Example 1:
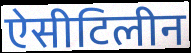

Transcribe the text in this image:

ऐसीटिलीन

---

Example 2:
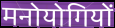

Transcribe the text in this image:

मनोयोगियों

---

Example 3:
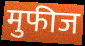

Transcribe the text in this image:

मुफीज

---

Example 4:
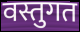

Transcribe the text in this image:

वस्तुगत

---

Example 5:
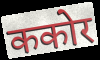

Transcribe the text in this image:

ककोर